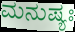
ಮನುಷ್ಯಃ